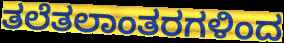
ತಲೆತಲಾಂತರಗಳಿಂದ